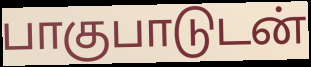
பாகுபாடுடன்